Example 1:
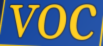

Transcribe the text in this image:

voc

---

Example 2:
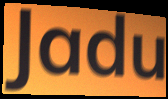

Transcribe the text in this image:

Jadu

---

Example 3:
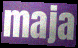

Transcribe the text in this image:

maja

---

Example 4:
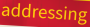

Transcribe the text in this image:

addressing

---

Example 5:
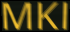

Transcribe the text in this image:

MKI